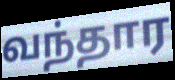
வந்தார